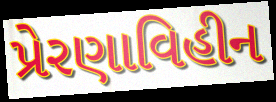
પ્રેરણાવિહીન